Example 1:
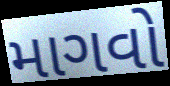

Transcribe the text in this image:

માગવો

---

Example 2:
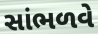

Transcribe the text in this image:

સાંભળવે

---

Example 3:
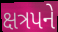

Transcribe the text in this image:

ક્ષત્રપને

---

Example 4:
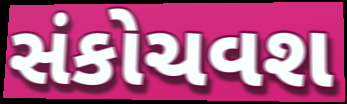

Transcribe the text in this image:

સંકોચવશ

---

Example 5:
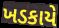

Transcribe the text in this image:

ખડકાયે